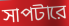
সাপটারে